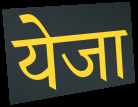
येजा